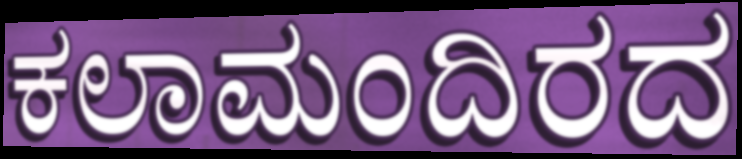
ಕಲಾಮಂದಿರದ